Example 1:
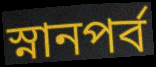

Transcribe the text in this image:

স্নানপর্ব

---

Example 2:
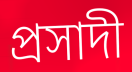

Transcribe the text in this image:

প্রসাদী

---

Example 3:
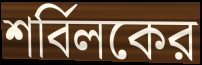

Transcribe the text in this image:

শর্বিলকের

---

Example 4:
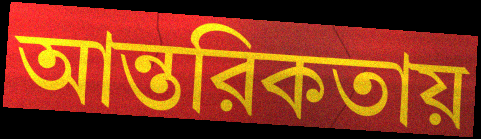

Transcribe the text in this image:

আন্তরিকতায়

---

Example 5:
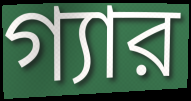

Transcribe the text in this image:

গ্যার